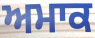
ਅਮਾਕ